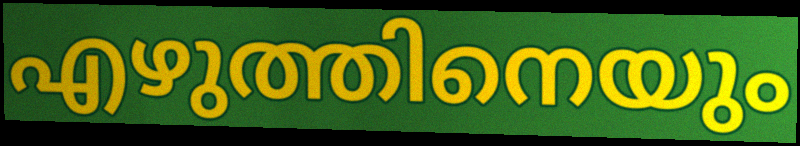
എഴുത്തിനെയും